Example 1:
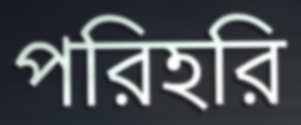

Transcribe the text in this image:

পরিহরি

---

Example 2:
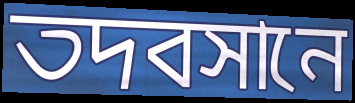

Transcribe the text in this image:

তদবসানে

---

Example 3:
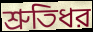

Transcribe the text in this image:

শ্রুতিধর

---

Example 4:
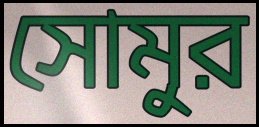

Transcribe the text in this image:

সোমুর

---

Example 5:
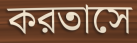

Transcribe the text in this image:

করতাসে